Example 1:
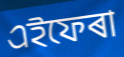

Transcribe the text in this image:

এইফেৰা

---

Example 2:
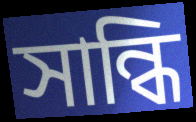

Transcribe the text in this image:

সান্ধি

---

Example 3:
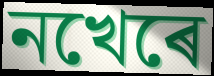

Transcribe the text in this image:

নখেৰে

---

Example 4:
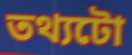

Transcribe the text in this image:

তথ্যটো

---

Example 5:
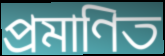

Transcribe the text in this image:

প্ৰমাণিত